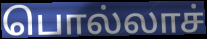
பொல்லாச்